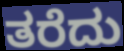
ತರೆದು